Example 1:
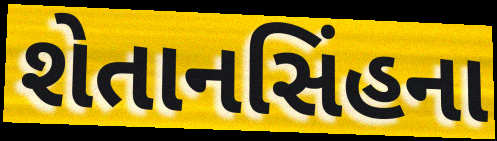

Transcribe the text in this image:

શેતાનસિંહના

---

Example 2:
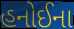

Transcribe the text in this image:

હનોઈના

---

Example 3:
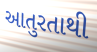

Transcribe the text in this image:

આતુરતાથી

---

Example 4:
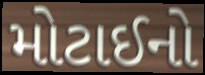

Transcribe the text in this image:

મોટાઈનો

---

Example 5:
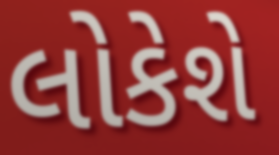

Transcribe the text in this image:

લોકેશે